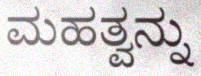
ಮಹತ್ವನ್ನು